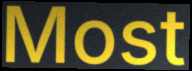
Most